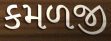
કમળજી